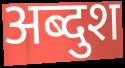
अब्दुश